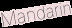
Mandarin